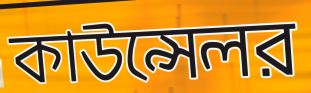
কাউন্সেলর